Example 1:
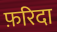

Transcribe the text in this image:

फ़रिदा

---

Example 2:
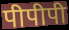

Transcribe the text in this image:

पीपीपी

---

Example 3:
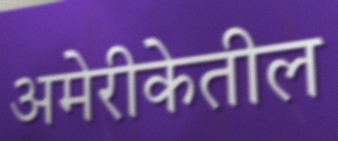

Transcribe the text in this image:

अमेरीकेतील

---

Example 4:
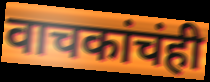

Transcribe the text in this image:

वाचकांचंही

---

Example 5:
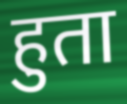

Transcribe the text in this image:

हुता